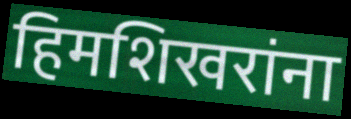
हिमशिखरांना